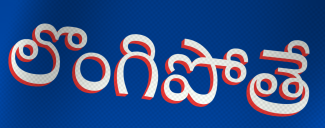
లొంగిపోతే